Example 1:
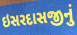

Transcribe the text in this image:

ઇસરદાસજીનું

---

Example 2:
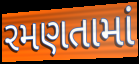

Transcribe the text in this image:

રમણતામાં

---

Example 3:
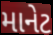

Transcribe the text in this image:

માનેટ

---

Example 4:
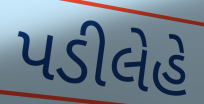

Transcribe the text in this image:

પડીલેહે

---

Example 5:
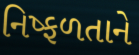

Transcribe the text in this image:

નિષ્ફળતાને